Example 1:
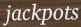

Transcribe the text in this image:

jackpots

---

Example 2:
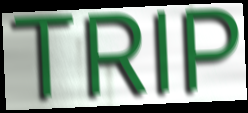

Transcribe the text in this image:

TRIP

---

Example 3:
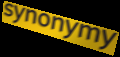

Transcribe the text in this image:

synonymy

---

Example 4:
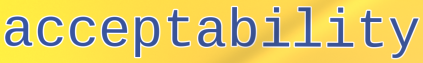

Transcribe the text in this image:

acceptability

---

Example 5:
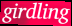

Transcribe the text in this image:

girdling